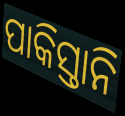
ପାକିସ୍ତାନି